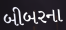
બીબરના